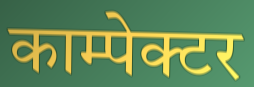
काम्पेक्टर